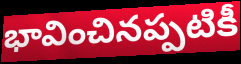
భావించినప్పటికీ